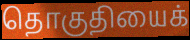
தொகுதியைக்